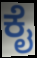
ಕೈ